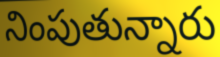
నింపుతున్నారు